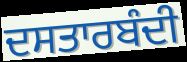
ਦਸਤਾਰਬੰਦੀ